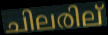
ചിലരില്